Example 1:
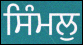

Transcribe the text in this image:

ਸਿੰਮਲੁ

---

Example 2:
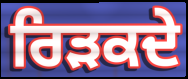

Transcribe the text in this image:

ਰਿੜਕਦੇ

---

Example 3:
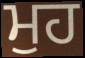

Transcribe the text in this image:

ਮੁਹ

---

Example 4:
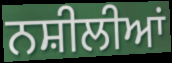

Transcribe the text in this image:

ਨਸ਼ੀਲੀਆਂ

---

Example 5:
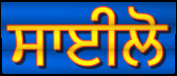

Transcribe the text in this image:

ਸਾਈਲੋ